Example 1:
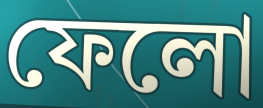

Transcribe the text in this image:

ফেলো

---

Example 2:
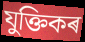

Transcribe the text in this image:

যুক্তিকৰ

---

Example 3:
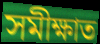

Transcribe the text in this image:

সমীক্ষাত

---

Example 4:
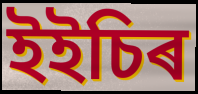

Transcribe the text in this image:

ইইচিৰ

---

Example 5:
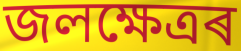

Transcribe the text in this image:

জলক্ষেত্ৰৰ